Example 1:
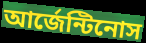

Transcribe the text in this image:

আর্জেন্টিনোস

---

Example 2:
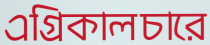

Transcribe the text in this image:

এগ্রিকালচারে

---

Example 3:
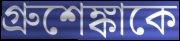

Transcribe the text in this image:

গ্রুশেঙ্কাকে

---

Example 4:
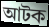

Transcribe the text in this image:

আটক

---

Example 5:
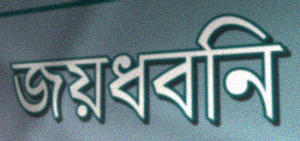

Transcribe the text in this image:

জয়ধবনি